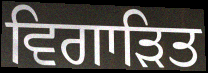
ਵਿਗਾੜਿਤ